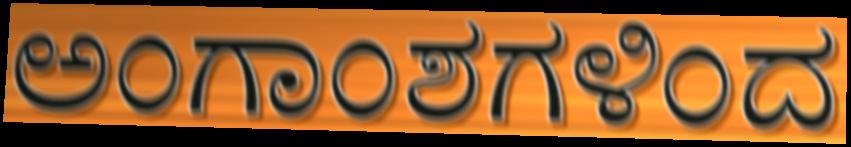
ಅಂಗಾಂಶಗಳಿಂದ